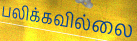
பலிக்கவில்லை